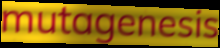
mutagenesis